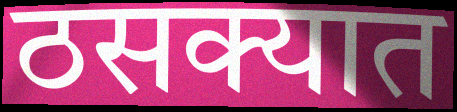
ठसक्यात